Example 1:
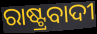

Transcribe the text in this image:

ରାଷ୍ଟ୍ରବାଦୀ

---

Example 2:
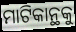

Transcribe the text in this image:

ମାଟିକାନ୍ଥକୁ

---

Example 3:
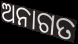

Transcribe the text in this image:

ଅନାଗତ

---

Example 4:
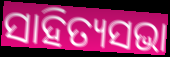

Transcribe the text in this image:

ସାହିତ୍ୟସଭା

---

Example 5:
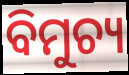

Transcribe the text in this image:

ବିମୁଚ୍ୟ